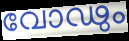
വോഢും